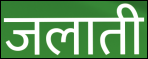
जलाती